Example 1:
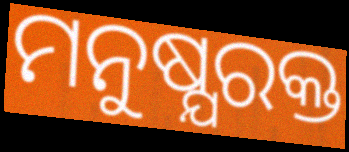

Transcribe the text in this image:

ମନୁଷ୍ଯରକ୍ତ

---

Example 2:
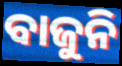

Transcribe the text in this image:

ବାଜୁନି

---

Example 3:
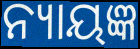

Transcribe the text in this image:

ନ୍ୟାୟଜ୍ଞ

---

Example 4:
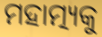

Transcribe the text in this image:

ମହାତ୍ମ୍ୟକୁ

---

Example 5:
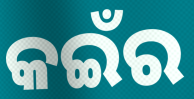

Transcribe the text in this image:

କଇଁର